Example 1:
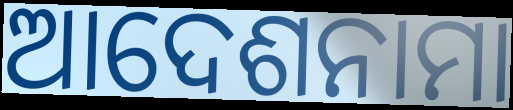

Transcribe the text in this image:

ଆଦେଶନାମା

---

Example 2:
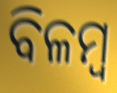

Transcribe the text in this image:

ବିଳମ୍ଵ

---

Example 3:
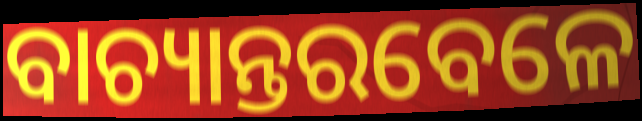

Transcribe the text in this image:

ବାଚ୍ୟାନ୍ତରବେଳେ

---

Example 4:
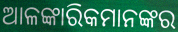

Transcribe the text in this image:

ଆଳଙ୍କାରିକମାନଙ୍କର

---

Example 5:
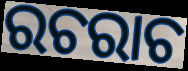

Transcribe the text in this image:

ରଚରାଚ